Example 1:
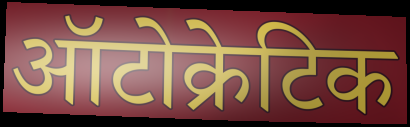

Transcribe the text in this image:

ऑटोक्रेटिक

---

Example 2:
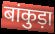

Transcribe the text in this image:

बांकुड़ा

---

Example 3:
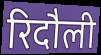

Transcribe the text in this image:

रिदौली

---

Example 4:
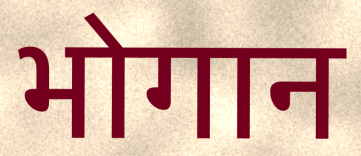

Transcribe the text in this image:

भोगान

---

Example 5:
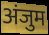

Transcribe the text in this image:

अंजुम